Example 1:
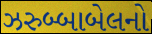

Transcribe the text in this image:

ઝરુબ્બાબેલનો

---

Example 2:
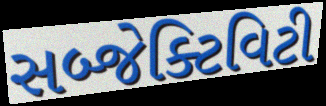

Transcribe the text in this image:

સબ્જેક્ટિવિટી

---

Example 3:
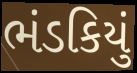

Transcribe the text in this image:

ભંડકિયું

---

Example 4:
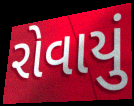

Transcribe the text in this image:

રોવાયું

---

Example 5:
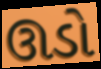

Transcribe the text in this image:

ઊડો